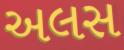
અલસ